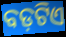
ବଡ଼ଟିଏ